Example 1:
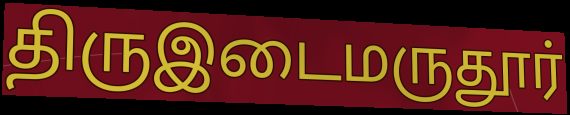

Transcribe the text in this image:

திருஇடைமருதூர்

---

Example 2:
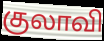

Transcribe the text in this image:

குலாவி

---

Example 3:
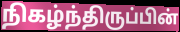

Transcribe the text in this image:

நிகழ்ந்திருப்பின்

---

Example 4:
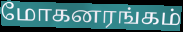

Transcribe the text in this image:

மோகனரங்கம்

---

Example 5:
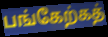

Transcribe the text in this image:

பங்கேற்கத்